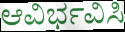
ಆವಿರ್ಭವಿಸಿ